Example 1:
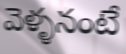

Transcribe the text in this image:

వెళ్ళనంటే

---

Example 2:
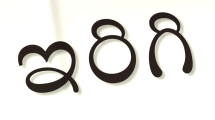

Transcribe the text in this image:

ఇరిగి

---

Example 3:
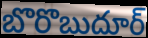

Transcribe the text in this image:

బొరొబుదూర్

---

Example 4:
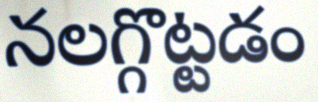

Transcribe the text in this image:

నలగ్గొట్టడం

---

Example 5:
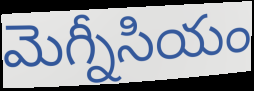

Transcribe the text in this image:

మెగ్నీసియం